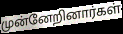
முன்னேறினார்கள்